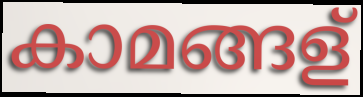
കാമങ്ങള്